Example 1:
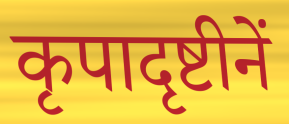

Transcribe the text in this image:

कृपादृष्टीनें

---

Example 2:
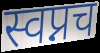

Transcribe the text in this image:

स्वप्नच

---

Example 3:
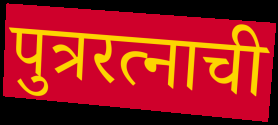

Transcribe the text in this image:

पुत्ररत्नाची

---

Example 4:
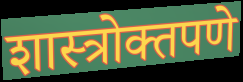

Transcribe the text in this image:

शास्त्रोक्तपणे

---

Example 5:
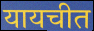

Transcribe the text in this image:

यायचीत